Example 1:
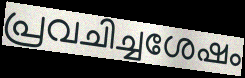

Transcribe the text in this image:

പ്രവചിച്ചശേഷം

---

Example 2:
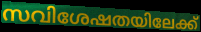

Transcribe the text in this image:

സവിശേഷതയിലേക്ക്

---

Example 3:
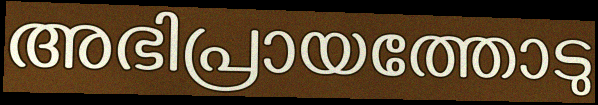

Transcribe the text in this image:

അഭിപ്രായത്തോടു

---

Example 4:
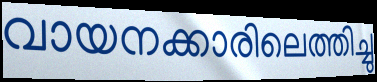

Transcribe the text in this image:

വായനക്കാരിലെത്തിച്ചു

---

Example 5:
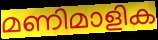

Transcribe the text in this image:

മണിമാളിക